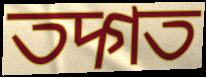
তদ্গত